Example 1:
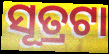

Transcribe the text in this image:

ସୂତ୍ରଟା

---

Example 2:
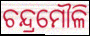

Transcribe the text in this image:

ଚନ୍ଦ୍ରମୌଳି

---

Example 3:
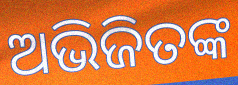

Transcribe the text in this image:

ଅଭିଜିତଙ୍କ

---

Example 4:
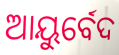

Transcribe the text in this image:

ଆୟୁର୍ବେଦ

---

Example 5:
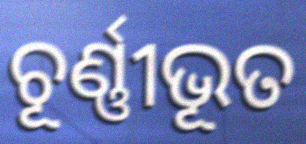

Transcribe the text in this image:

ଚୂର୍ଣ୍ଣୀଭୂତ